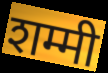
शम्मी